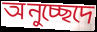
অনুচ্ছেদে